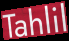
Tahlil